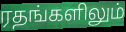
ரதங்களிலும்